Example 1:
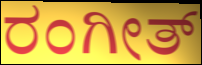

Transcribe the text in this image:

ರಂಗೀತ್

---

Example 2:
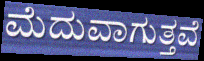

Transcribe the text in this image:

ಮೆದುವಾಗುತ್ತವೆ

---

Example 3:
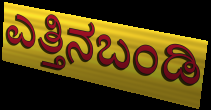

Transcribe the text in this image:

ಎತ್ತಿನಬಂಡಿ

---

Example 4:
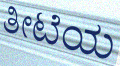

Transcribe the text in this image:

ತೀಟೆಯ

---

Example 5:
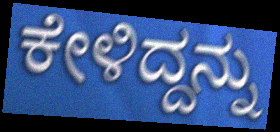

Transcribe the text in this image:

ಕೇಳಿದ್ದನ್ನು